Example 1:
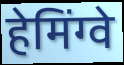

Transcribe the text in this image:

हेमिंग्वे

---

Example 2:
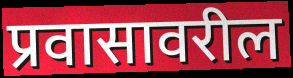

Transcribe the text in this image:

प्रवासावरील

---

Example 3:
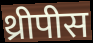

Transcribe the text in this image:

थ्रीपीस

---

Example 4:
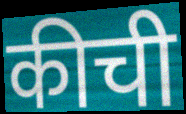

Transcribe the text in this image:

कीची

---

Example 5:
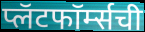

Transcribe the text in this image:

प्लॅटफॉर्म्सची